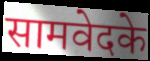
सामवेदके